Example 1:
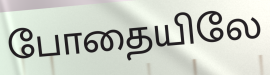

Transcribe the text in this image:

போதையிலே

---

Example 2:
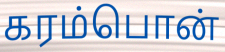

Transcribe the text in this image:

கரம்பொன்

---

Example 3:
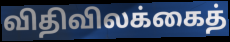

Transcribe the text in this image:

விதிவிலக்கைத்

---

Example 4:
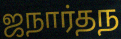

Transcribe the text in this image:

ஜநார்தந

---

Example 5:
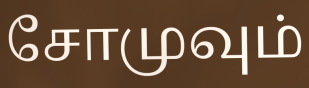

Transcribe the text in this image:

சோமுவும்